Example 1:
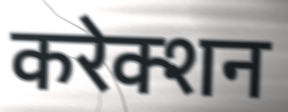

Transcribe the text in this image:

करेक्शन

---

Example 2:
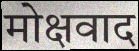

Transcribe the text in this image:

मोक्षवाद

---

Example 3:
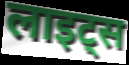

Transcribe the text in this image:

लाइट्स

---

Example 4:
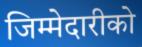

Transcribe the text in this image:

जिम्मेदारीको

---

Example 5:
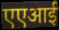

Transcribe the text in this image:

एएआई